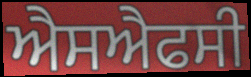
ਐਸਐਫਸੀ